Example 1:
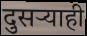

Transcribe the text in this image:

दुसर्‍याही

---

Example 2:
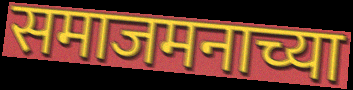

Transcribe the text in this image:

समाजमनाच्या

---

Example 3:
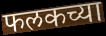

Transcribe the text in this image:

फलकच्या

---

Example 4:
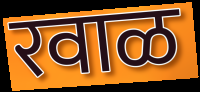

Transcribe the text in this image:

रवाळ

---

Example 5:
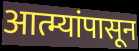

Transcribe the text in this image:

आत्म्यांपासून